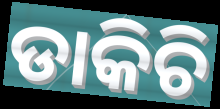
ଡାକିଚି